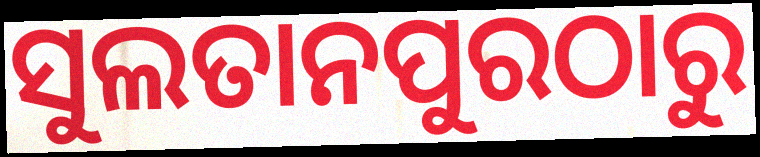
ସୁଲତାନପୁରଠାରୁ